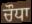
ਚੌਧਾ